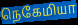
நெகேமியா